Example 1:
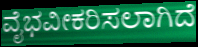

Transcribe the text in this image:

ವೈಭವೀಕರಿಸಲಾಗಿದೆ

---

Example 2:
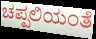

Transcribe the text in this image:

ಚಪ್ಪಲಿಯಂತೆ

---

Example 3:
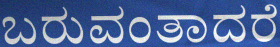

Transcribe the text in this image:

ಬರುವಂತಾದರೆ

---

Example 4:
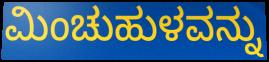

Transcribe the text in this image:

ಮಿಂಚುಹುಳವನ್ನು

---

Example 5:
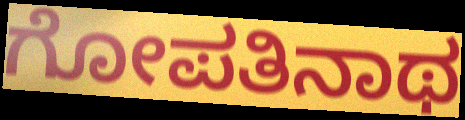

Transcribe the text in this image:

ಗೋಪತಿನಾಥ